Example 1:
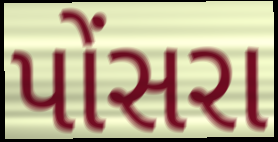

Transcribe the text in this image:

પોંસરા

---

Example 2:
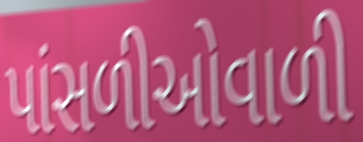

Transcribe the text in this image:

પાંસળીઓવાળી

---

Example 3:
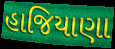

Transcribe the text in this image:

હાજિયાણા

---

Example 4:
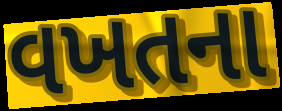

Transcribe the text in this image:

વખતના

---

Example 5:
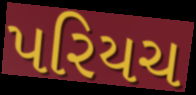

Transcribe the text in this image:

પરિયચ